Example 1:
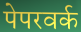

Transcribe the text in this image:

पेपरवर्क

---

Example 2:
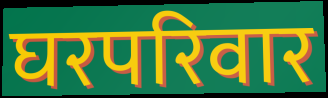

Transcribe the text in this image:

घरपरिवार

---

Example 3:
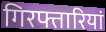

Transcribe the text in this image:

गिरफ्तारियां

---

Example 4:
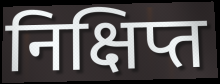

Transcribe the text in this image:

निक्षिप्त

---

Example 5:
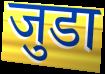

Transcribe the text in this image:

जुडा